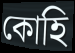
কোহি